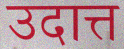
उदात्त